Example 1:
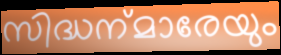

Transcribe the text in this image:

സിദ്ധന്‌മാരേയും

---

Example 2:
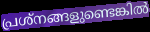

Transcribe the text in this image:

പ്രശ്നങ്ങളുണ്ടെങ്കിൽ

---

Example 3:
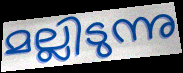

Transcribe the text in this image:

മല്ലിടുന്നു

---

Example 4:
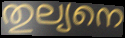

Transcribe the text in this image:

തുല്യനെ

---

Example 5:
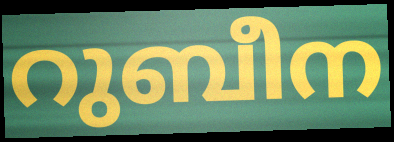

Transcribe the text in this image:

റുബീന